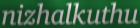
nizhalkuthu